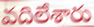
వదిలేశారు